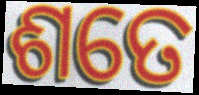
ଶତେ